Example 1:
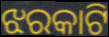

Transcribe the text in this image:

ଝରକାଟି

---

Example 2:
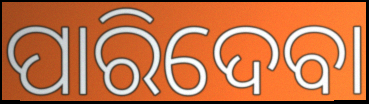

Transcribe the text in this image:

ପାରିଦେବା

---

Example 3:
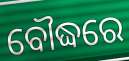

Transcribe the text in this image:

ବୌଦ୍ଧରେ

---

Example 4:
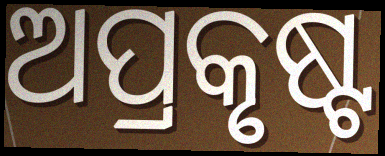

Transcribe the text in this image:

ଅପ୍ରକୃଷ୍ଟ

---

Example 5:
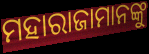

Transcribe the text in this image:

ମହାରାଜାମାନଙ୍କୁ